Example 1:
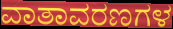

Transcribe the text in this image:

ವಾತಾವರಣಗಳ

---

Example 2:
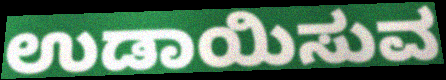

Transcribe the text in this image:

ಉಡಾಯಿಸುವ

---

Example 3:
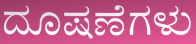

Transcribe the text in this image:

ದೂಷಣೆಗಳು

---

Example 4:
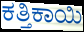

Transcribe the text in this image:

ಕತ್ತಿಕಾಯಿ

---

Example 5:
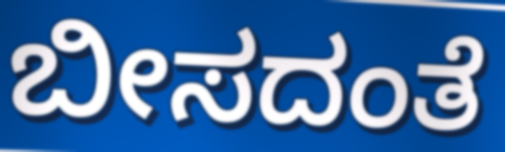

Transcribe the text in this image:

ಬೀಸದಂತೆ